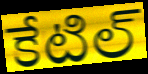
కేటిల్